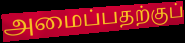
அமைப்பதற்குப்